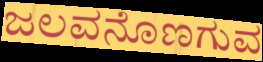
ಜಲವನೊಣಗುವ